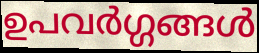
ഉപവർഗ്ഗങ്ങൾ